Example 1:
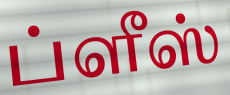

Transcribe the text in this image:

ப்ளீஸ்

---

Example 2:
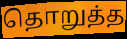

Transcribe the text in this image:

தொறுத்த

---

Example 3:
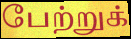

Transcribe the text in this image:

பேற்றுக்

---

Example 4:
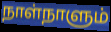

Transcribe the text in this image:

நாள்நாளும்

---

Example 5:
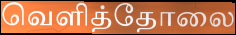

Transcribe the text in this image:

வெளித்தோலை